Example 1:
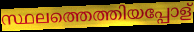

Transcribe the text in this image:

സ്ഥലത്തെത്തിയപ്പോള്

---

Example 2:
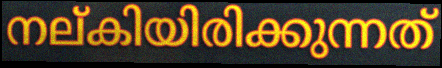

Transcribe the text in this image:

നല്കിയിരിക്കുന്നത്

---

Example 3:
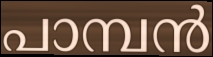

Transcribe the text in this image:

പാമ്പൻ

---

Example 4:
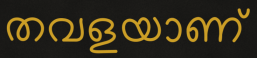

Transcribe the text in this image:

തവളയാണ്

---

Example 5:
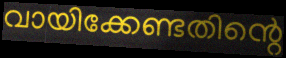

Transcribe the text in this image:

വായിക്കേണ്ടതിന്റെ